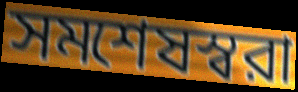
সমশেষস্বরা